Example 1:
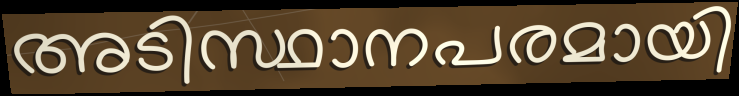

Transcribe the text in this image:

അടിസ്ഥാനപരമായി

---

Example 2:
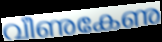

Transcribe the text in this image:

വീണുകേണു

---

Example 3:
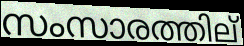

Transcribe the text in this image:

സംസാരത്തില്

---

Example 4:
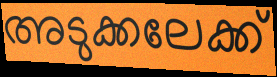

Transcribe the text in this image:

അടുക്കലേക്ക്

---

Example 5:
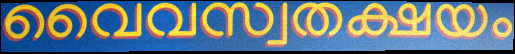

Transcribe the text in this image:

വൈവസ്വതക്ഷയം